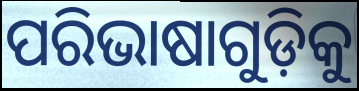
ପରିଭାଷାଗୁଡ଼ିକୁ